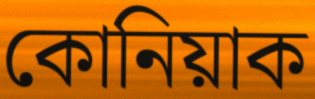
কোনিয়াক